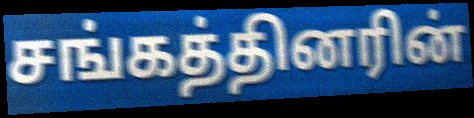
சங்கத்தினரின்